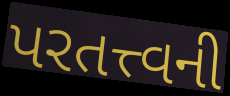
પરતત્ત્વની